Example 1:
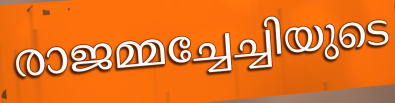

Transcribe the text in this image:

രാജമ്മച്ചേച്ചിയുടെ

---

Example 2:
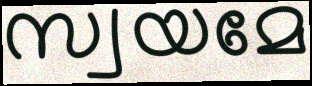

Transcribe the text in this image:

സ്വയമേ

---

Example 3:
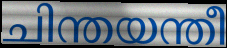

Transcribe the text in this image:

ചിന്തയന്തീ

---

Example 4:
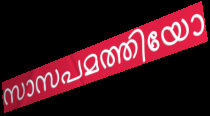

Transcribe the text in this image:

സാസപമത്തിയോ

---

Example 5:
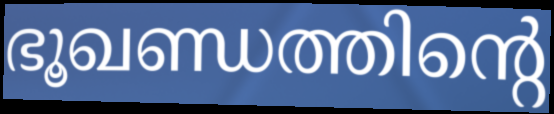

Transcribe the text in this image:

ഭൂഖണ്ഡത്തിന്റെ